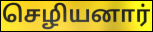
செழியனார்